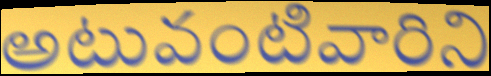
అటువంటివారిని